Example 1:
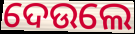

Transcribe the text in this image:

ଦେଉଲେ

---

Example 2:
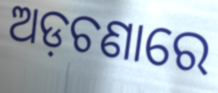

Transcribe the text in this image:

ଅଡ଼ଚଣାରେ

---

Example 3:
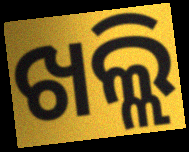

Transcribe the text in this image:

ଖଲ୍ଲି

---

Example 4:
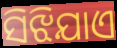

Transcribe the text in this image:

ସିଝିଯାଏ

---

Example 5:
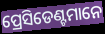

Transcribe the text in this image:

ପ୍ରେସିଡେଣ୍ଟମାନେ